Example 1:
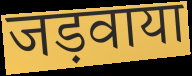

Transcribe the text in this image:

जड़वाया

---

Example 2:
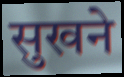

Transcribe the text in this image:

सुखने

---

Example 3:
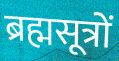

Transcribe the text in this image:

ब्रह्मसूत्रों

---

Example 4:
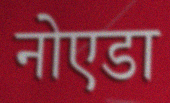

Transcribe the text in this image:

नोएडा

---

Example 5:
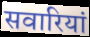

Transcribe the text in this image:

सवारियां